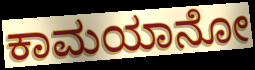
ಕಾಮಯಾನೋ